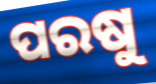
ପରଷୁ